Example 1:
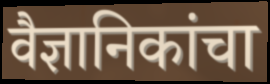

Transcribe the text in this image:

वैज्ञानिकांचा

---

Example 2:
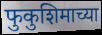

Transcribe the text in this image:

फुकुशिमाच्या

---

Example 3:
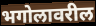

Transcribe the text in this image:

भगोलावरील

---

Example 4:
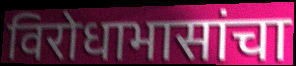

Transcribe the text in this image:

विरोधाभासांचा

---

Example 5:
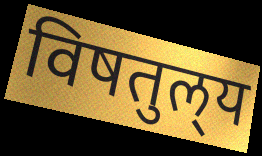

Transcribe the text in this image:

विषतुल्य